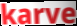
karve